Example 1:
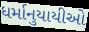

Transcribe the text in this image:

ધર્માનુયાયીઓ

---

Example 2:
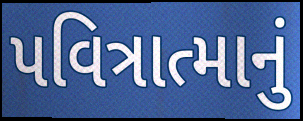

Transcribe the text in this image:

પવિત્રાત્માનું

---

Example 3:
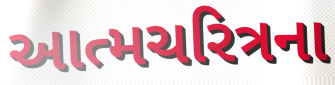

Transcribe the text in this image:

આત્મચરિત્રના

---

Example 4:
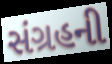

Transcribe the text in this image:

સંગ્રહની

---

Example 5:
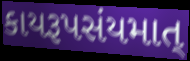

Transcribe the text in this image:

કાયરૂપસંયમાત્